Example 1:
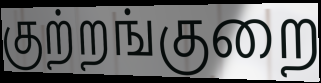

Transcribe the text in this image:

குற்றங்குறை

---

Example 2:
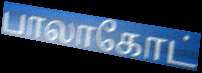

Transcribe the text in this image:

பாலாகோட்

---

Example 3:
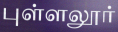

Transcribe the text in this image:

புள்ளலூர்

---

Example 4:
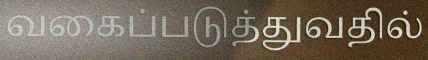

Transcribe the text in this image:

வகைப்படுத்துவதில்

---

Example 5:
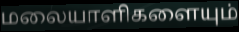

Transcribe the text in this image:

மலையாளிகளையும்